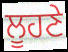
ਲੂਹਣੇ